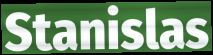
Stanislas